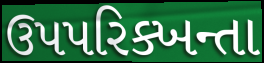
ઉપપરિક્ખન્તા